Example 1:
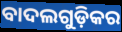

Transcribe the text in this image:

ବାଦଲଗୁଡ଼ିକର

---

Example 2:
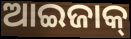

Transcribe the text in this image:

ଆଇଜାକ୍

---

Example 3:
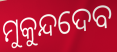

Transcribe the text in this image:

ମୁକୁନ୍ଦଦେବ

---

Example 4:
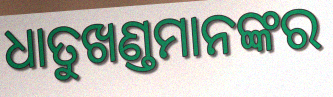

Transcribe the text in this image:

ଧାତୁଖଣ୍ଡମାନଙ୍କର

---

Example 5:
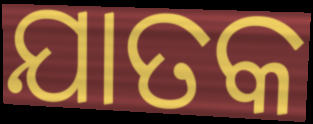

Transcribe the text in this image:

ଯାତକ